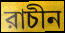
রাচীন